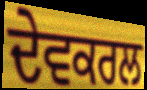
ਦੇਵਕਰਲ